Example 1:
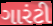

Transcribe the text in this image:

ગારંટી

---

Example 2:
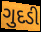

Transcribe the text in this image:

ગુદડી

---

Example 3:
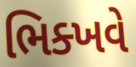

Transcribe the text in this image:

ભિક્ખવે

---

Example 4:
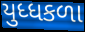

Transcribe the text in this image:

યુધ્ધકળા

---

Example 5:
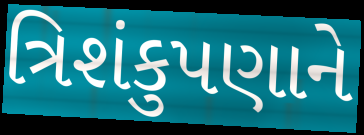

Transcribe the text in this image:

ત્રિશંકુપણાને